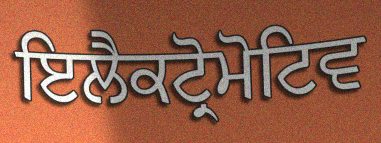
ਇਲੈਕਟ੍ਰੋਮੋਟਿਵ